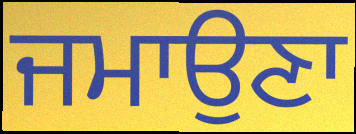
ਜਮਾਉਣਾ